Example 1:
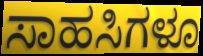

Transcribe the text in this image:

ಸಾಹಸಿಗಳೂ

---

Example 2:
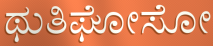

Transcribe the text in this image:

ಥುತಿಘೋಸೋ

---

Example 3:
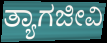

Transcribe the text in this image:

ತ್ಯಾಗಜೀವಿ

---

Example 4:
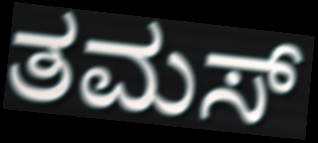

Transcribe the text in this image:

ತಮಸ್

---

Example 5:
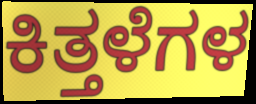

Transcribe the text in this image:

ಕಿತ್ತಳೆಗಳ